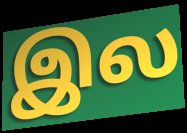
இல